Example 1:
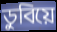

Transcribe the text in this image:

ডুবিয়ে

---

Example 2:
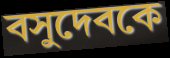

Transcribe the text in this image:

বসুদেবকে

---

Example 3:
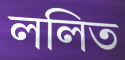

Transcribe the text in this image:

ললিত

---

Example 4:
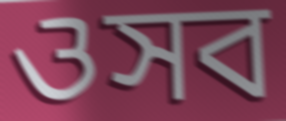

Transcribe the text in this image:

ওসব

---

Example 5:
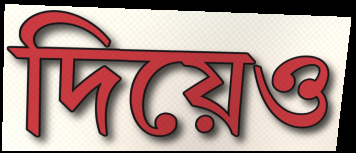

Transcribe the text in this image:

দিয়েও